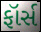
ફૉર્સ